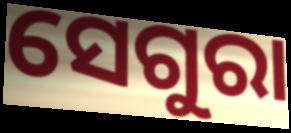
ସେଗୁରା